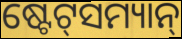
ଷ୍ଟେଟ୍‌ସମ୍ୟାନ୍